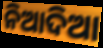
ନିଆଦିଆ